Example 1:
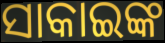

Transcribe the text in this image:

ସାକାଇଙ୍କ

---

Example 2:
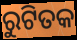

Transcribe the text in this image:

ରୁଟିତକ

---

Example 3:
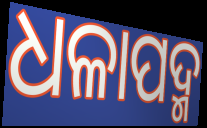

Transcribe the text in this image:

ଧଳାପଦ୍ମ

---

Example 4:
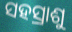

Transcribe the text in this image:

ସହସ୍ରାଶୁ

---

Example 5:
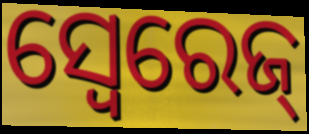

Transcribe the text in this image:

ସ୍ବେରେଜ୍